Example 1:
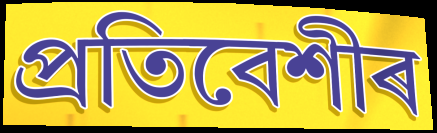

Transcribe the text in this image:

প্ৰতিবেশীৰ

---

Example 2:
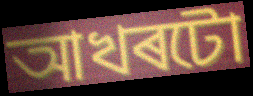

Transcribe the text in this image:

আখৰটো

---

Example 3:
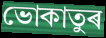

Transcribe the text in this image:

ভোকাতুৰ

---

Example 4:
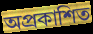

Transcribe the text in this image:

অপ্ৰকাশিত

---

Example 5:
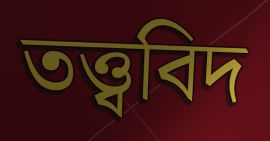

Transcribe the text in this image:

তত্ত্ববিদ